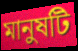
মানুষটি